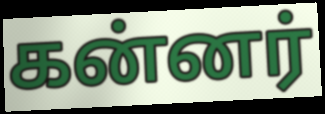
கன்னர்